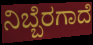
ನಿಬ್ಬೆರಗಾದೆ